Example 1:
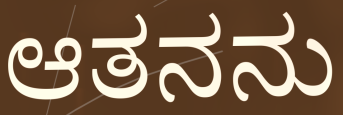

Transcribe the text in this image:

ಆತನನು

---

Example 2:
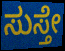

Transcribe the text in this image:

ಸುಸ್ತೇ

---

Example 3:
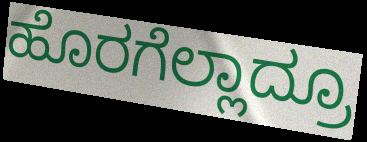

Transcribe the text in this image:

ಹೊರಗೆಲ್ಲಾದ್ರೂ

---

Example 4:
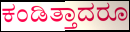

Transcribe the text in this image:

ಕಂಡಿತ್ತಾದರೂ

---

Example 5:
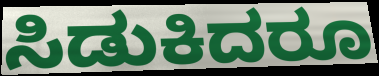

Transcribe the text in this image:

ಸಿಡುಕಿದರೂ